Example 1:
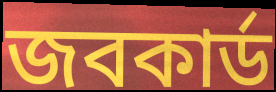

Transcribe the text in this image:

জবকার্ড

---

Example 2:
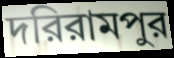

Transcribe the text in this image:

দরিরামপুর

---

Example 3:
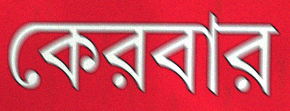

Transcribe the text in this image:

কেরবার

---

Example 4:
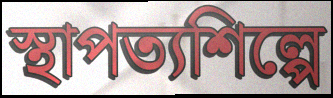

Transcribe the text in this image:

স্থাপত্যশিল্পে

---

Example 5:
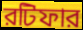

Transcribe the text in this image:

রটিফার